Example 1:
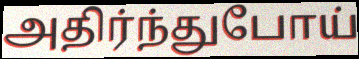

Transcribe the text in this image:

அதிர்ந்துபோய்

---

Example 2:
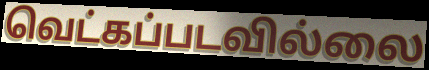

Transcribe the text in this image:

வெட்கப்படவில்லை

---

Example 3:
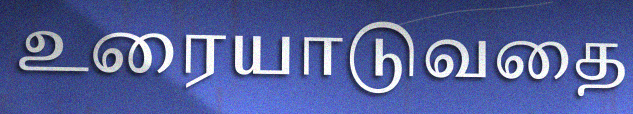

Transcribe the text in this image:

உரையாடுவதை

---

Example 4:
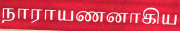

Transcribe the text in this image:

நாராயணனாகிய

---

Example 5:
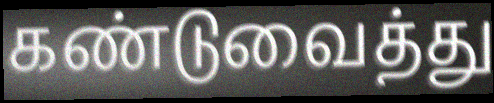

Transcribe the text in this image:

கண்டுவைத்து